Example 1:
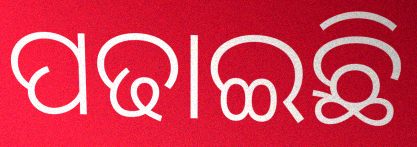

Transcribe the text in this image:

ପଢାଇଛି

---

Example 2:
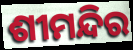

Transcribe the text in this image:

ଶୀମନ୍ଦିର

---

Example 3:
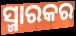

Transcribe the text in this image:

ସ୍ମାରକର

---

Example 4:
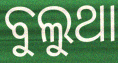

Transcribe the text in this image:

ବୁଲୁଥା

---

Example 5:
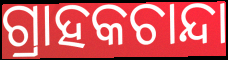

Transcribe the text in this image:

ଗ୍ରାହକଚାନ୍ଦା